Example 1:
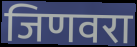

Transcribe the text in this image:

जिणवरा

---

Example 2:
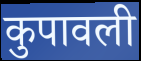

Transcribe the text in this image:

कुपावली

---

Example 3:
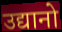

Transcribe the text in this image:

उद्यानो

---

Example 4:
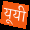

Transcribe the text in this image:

यूयी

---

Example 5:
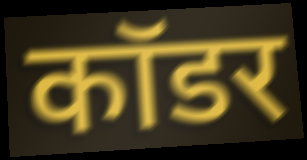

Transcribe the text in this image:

कॉडर